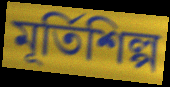
মূর্তিশিল্প